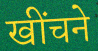
खींचने